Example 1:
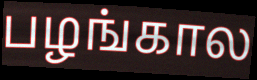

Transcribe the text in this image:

பழங்கால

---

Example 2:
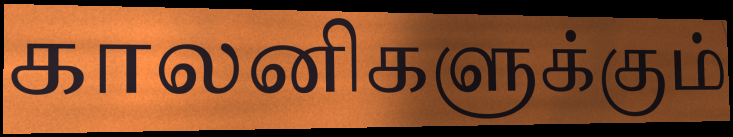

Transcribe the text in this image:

காலனிகளுக்கும்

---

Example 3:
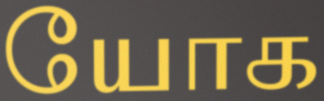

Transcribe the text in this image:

யோக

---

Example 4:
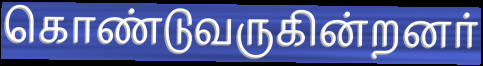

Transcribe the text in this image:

கொண்டுவருகின்றனர்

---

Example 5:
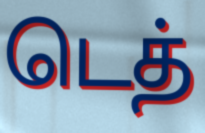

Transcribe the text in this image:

டெத்